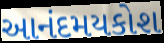
આનંદમયકોશ